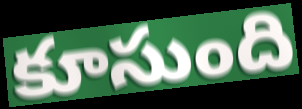
కూసుంది